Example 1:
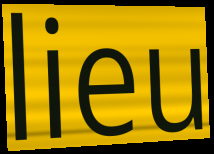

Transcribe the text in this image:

lieu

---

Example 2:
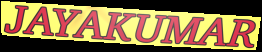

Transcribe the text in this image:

JAYAKUMAR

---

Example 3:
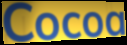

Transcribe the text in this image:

Cocoa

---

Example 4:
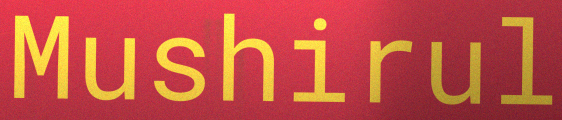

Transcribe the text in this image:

Mushirul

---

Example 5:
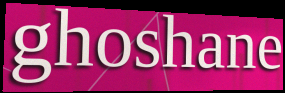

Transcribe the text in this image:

ghoshane